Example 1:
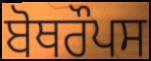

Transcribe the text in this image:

ਬੋਥਰੌਪਸ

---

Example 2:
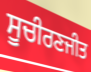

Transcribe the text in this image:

ਸੂਚੀਰਣਜੀਤ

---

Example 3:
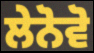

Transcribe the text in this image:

ਲੇਨੋਵੋ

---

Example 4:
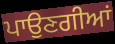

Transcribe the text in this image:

ਪਾਉਣਗੀਆਂ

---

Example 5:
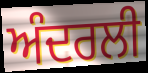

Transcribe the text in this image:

ਅੰਦਰਲੀ